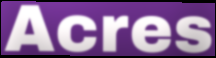
Acres